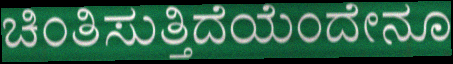
ಚಿಂತಿಸುತ್ತಿದೆಯೆಂದೇನೂ